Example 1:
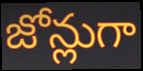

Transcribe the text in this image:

జోన్లుగా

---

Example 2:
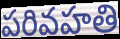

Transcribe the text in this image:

పరివహతి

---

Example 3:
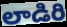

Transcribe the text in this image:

లాడిరి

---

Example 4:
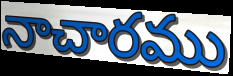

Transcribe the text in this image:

నాచారము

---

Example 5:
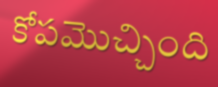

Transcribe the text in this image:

కోపమొచ్చింది